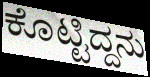
ಕೊಟ್ಟಿದ್ದನು